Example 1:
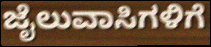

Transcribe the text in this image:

ಜೈಲುವಾಸಿಗಳಿಗೆ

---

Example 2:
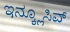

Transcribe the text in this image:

ಇನ್ಕ್ಲೂಸಿವ್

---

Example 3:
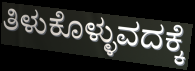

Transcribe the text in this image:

ತಿಳುಕೊಳ್ಳುವದಕ್ಕೆ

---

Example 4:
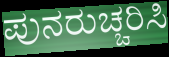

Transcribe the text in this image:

ಪುನರುಚ್ಚರಿಸಿ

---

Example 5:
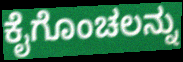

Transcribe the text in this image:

ಕೈಗೊಂಚಲನ್ನು